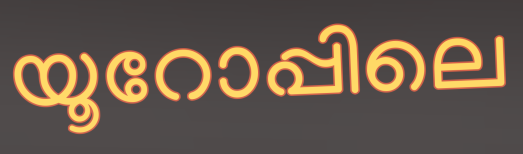
യൂറോപ്പിലെ